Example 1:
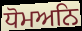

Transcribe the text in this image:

ਧੋਮਅਨਿ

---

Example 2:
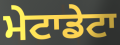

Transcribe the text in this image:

ਮੇਟਾਡੇਟਾ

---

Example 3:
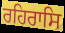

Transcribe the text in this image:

ਰਹਿਰਾਸਿ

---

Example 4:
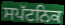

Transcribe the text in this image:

ਸਪੱਟਨਿਕ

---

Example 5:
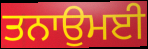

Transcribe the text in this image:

ਤਨਾਉਮਈ